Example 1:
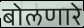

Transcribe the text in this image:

बोलणारे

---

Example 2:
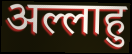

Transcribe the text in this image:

अल्लाहु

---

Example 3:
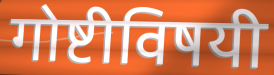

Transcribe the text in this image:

गोष्टीविषयी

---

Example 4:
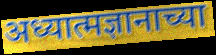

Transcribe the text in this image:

अध्यात्मज्ञानाच्या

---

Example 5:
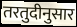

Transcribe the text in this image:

तरतुदीनुसार